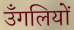
उँगलियों